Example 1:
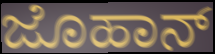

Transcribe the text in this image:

ಜೊಹಾನ್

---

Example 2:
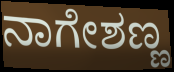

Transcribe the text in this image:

ನಾಗೇಶಣ್ಣ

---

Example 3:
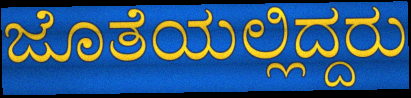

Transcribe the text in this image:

ಜೊತೆಯಲ್ಲಿದ್ದರು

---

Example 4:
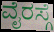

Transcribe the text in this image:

ವೈರಸ್ಗೆ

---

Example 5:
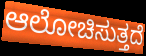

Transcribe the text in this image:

ಆಲೋಚಿಸುತ್ತದೆ